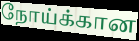
நோய்க்கான